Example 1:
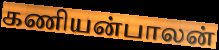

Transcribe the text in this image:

கணியன்பாலன்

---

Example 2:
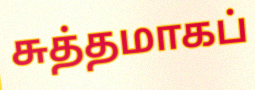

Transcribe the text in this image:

சுத்தமாகப்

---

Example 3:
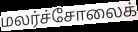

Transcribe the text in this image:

மலர்ச்சோலைக்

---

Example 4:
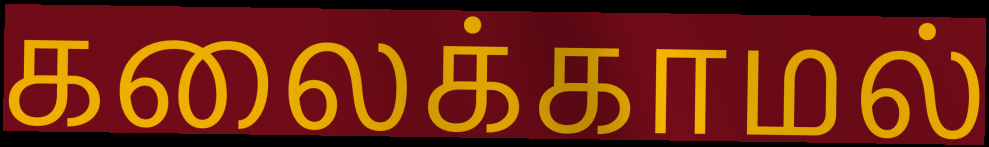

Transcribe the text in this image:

கலைக்காமல்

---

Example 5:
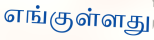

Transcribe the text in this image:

எங்குள்ளது